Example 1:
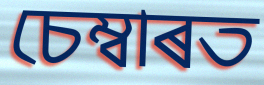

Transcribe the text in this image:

চেম্বাৰত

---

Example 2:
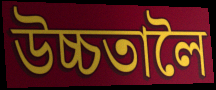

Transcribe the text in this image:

উচ্চতালৈ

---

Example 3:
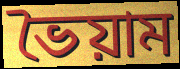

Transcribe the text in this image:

ভৈয়াম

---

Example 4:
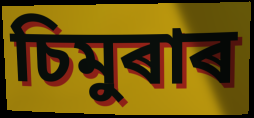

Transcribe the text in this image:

চিমুৰাৰ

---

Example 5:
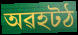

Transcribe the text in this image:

অৱহটঠ